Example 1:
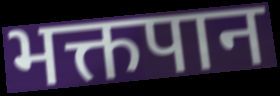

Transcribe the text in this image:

भक्तपान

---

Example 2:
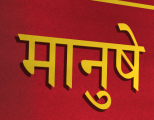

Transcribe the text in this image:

मानुषे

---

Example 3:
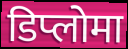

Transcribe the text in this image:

डिप्‍लोमा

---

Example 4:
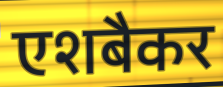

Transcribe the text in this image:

एशबैकर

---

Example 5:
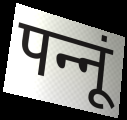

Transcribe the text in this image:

पन्नूं